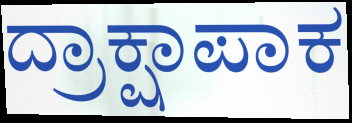
ದ್ರಾಕ್ಷಾಪಾಕ